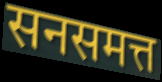
सनसमत्त